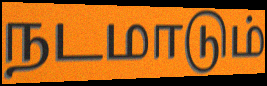
நடமாடும்